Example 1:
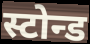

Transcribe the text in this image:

स्टोन्ड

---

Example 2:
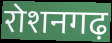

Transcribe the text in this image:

रोशनगढ़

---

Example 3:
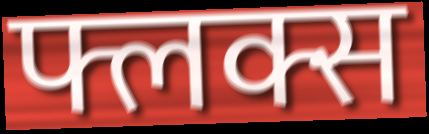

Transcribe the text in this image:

फ्लक्स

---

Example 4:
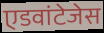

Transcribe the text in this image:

एडवांटेजेस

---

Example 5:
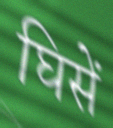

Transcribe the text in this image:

घिसें